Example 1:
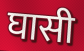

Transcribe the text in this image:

घासी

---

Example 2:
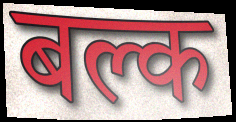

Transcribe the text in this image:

बल्क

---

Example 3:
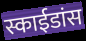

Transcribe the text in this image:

स्काईडांस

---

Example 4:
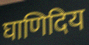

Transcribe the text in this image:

घाणिदिय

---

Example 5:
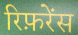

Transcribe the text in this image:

रिफ़रेंस